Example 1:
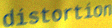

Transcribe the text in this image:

distortion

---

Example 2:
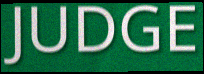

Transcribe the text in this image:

JUDGE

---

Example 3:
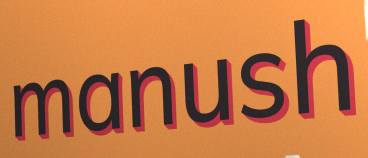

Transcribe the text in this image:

manush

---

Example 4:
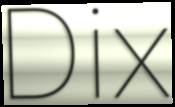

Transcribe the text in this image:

Dix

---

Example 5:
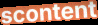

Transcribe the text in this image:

scontent